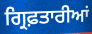
ਗ੍ਰਿਫ਼ਤਾਰੀਆਂ